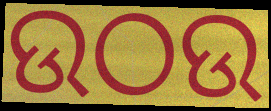
ଉଠଉ